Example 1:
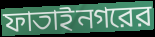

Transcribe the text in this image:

ফাতাইনগরের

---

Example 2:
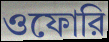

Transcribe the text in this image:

ওফোরি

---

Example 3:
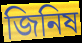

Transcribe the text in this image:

জিনিষ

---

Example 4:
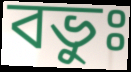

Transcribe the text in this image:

বভুঃ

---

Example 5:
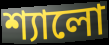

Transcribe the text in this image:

শ্যালো